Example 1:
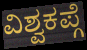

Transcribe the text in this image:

ವಿಶ್ವಕಪ್ಗೆ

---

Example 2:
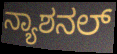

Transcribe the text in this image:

ನ್ಯಾಶನಲ್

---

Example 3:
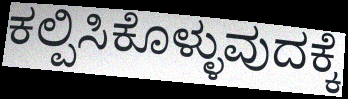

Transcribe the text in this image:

ಕಲ್ಪಿಸಿಕೊಳ್ಳುವುದಕ್ಕೆ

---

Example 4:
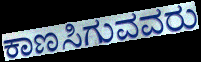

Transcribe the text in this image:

ಕಾಣಸಿಗುವವರು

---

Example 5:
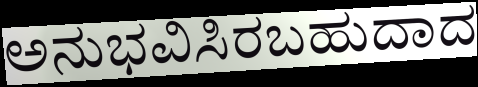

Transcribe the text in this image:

ಅನುಭವಿಸಿರಬಹುದಾದ